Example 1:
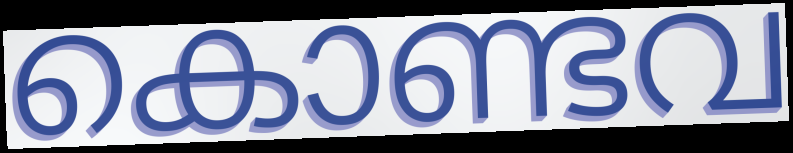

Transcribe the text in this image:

കൊണ്ടവ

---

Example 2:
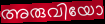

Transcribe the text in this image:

അരുവിയോ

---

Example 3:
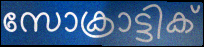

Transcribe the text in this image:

സോക്രാട്ടിക്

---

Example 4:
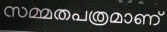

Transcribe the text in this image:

സമ്മതപത്രമാണ്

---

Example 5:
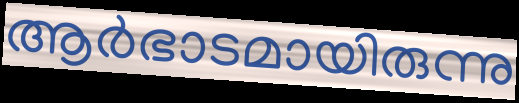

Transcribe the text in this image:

ആർഭാടമായിരുന്നു